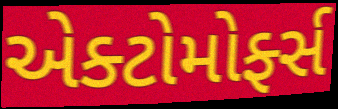
એક્ટોમોર્ફ્સ